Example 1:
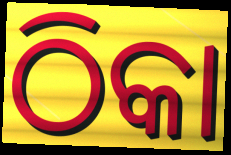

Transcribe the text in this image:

ଠିକା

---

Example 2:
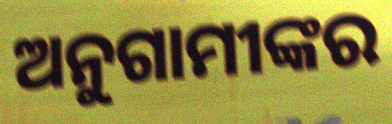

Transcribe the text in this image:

ଅନୁଗାମୀଙ୍କର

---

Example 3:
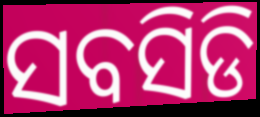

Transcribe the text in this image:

ସବସିଡି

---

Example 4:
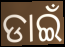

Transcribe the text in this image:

ଡାଇଁ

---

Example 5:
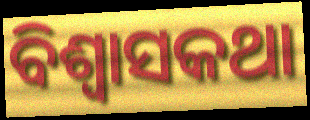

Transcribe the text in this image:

ବିଶ୍ଵାସକଥା